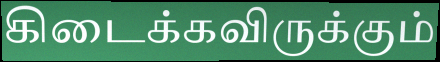
கிடைக்கவிருக்கும்